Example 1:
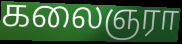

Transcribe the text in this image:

கலைஞரா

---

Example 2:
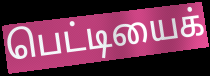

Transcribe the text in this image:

பெட்டியைக்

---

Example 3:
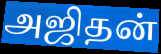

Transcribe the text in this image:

அஜிதன்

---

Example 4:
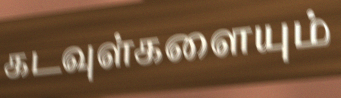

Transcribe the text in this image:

கடவுள்களையும்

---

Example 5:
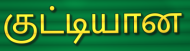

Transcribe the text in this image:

குட்டியான